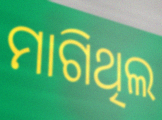
ମାଗିଥିଲ